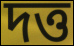
দত্ত